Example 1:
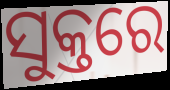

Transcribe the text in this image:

ସୁକ୍ତରେ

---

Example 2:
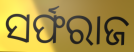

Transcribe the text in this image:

ସର୍ଫରାଜ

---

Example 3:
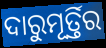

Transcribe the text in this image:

ଦାରୁମୂର୍ତ୍ତିର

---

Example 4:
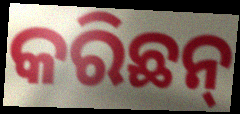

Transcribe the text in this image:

କରିଛନ୍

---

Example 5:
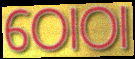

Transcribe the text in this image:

ଠୋଠା